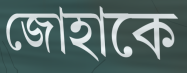
জোহাকে